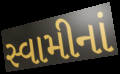
સ્વામીનાં